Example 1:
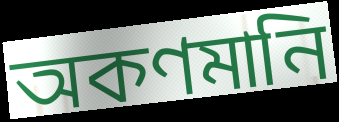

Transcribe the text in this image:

অকণমানি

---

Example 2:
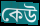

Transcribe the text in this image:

কেউ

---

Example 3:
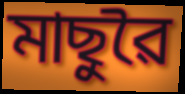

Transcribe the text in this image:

মাছুৱৈ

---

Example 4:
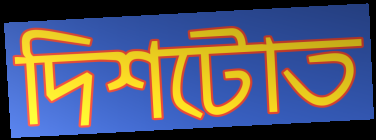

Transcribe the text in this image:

দিশটোত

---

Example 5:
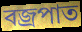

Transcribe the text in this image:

বজ্ৰপাত